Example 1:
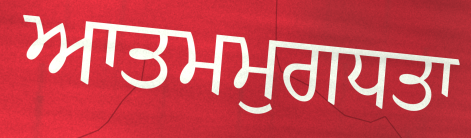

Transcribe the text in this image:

ਆਤਮਮੁਗਧਤਾ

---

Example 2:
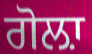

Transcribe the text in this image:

ਗੋਲ਼ਾ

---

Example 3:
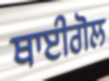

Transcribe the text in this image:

ਥਾਈਗੋਲ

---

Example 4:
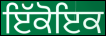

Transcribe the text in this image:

ਇੱਕੋਇਕ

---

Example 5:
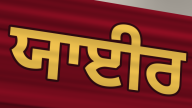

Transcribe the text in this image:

ਯਾਈਰ